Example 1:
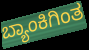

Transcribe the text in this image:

ಬ್ಯಾಂಕಿಗಿಂತ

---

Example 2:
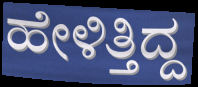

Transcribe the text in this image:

ಹೇಳಿತ್ತಿದ್ದ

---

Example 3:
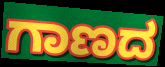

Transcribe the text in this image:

ಗಾಣದ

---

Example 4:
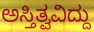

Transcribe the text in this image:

ಅಸ್ತಿತ್ವವಿದ್ದು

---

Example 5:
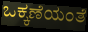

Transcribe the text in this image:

ಒಕ್ಕಣೆಯಂತೆ